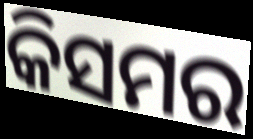
କିସମର